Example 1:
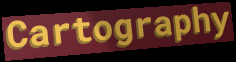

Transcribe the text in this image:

Cartography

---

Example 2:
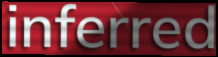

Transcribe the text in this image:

inferred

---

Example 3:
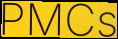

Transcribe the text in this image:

PMCs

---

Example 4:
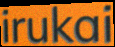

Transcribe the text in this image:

irukai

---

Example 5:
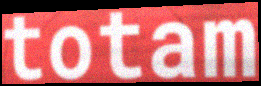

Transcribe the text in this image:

totam